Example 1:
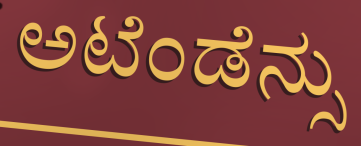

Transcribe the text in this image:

ಅಟೆಂಡೆನ್ಸು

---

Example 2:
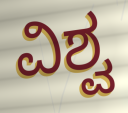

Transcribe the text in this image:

ವಿಶ್ವ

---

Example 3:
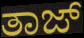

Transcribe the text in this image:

ತಾಜ್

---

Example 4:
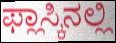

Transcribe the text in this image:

ಫ್ಲಾಸ್ಕಿನಲ್ಲಿ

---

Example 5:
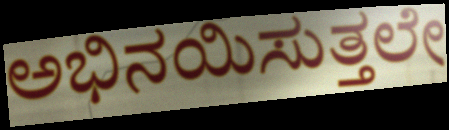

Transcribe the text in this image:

ಅಭಿನಯಿಸುತ್ತಲೇ